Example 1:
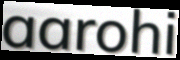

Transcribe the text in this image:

aarohi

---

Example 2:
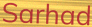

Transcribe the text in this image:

Sarhad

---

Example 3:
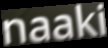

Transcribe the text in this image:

naaki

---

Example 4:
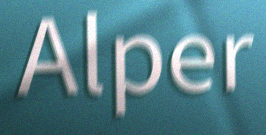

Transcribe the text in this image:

Alper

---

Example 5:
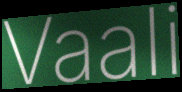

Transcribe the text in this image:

Vaali